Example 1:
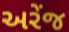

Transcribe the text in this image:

અરેંજ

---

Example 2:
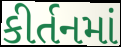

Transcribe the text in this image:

કીર્તનમાં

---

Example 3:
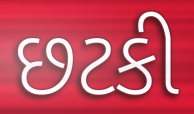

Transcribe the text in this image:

છટકી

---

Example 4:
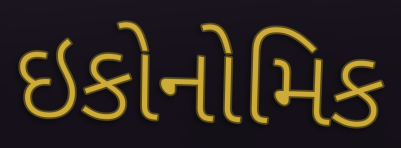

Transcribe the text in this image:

ઇકોનોમિક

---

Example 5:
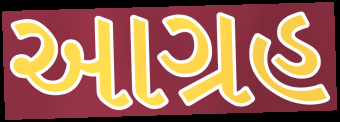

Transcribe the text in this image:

આગ્રહ